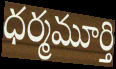
ధర్మమూర్తి